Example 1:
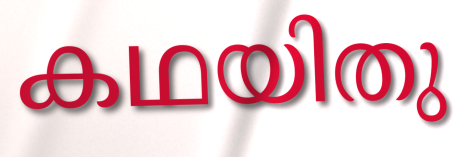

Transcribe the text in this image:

കഥയിതു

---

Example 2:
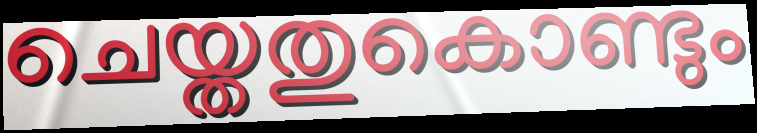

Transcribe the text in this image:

ചെയ്തതുകൊണ്ടും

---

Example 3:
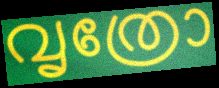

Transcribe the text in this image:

വൃത്രോ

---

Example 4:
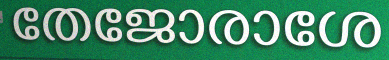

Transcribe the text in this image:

തേജോരാശേ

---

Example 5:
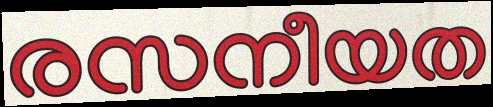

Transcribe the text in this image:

രസനീയത